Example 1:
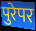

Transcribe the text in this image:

पुरेपर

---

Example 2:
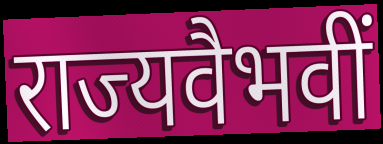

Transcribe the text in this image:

राज्यवैभवीं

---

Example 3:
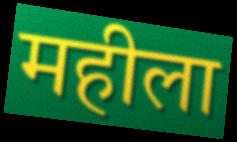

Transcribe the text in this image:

महीला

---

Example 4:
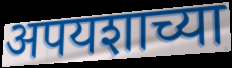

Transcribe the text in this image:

अपयशाच्या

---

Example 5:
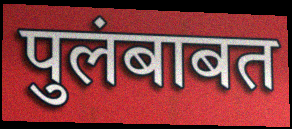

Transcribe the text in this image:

पुलंबाबत